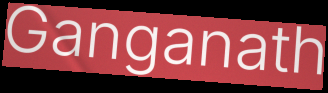
Ganganath